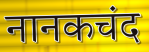
नानकचंद